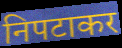
निपटाकर